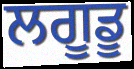
ਲਗੂਡੂ